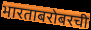
भारताबरोबरची